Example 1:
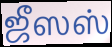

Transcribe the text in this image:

ஜீஸஸ்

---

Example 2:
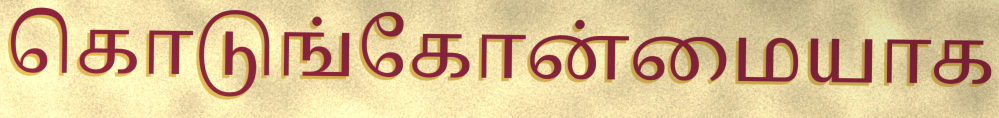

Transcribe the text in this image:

கொடுங்கோன்மையாக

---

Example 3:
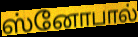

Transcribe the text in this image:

ஸ்னோபால்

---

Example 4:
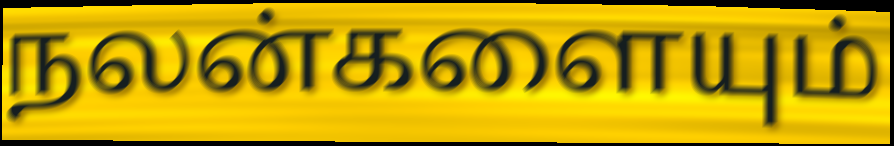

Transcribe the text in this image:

நலன்களையும்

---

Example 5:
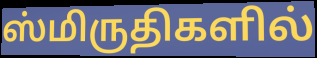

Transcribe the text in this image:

ஸ்மிருதிகளில்